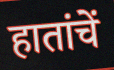
हातांचें